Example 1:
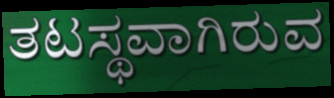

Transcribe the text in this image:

ತಟಸ್ಥವಾಗಿರುವ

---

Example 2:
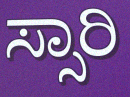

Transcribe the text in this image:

ಸ್ಸಾರಿ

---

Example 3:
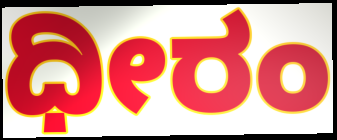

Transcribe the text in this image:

ಧೀರಂ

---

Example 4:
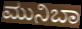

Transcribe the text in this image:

ಮುನಿಬಾ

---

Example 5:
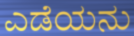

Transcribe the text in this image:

ಎಡೆಯನು